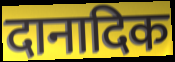
दानादिक